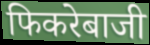
फिकरेबाजी